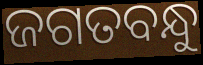
ଜଗତବନ୍ଧୁ